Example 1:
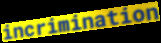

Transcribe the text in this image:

incrimination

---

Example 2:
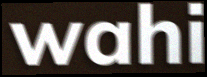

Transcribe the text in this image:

wahi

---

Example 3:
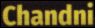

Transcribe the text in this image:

Chandni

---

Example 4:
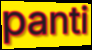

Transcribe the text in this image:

panti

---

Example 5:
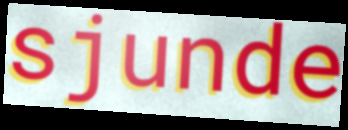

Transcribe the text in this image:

sjunde